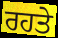
ਰਹਤੇ